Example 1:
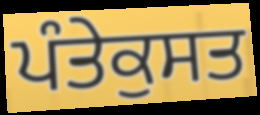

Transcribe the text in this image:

ਪੰਤੇਕੁਸਤ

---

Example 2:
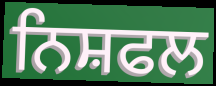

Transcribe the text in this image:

ਨਿਸ਼ਫਲ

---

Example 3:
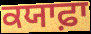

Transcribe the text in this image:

ਕਯਾਫ਼ਾ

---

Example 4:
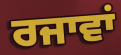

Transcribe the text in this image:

ਰਜਾਵਾਂ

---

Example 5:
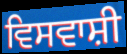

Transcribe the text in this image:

ਵਿਸਵਾਸ਼ੀ